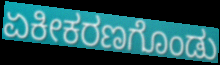
ಏಕೀಕರಣಗೊಂಡು